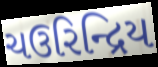
ચઉરિન્દ્રિય